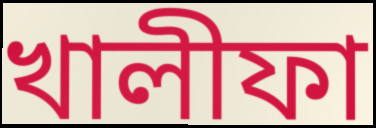
খালীফা